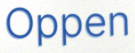
Oppen